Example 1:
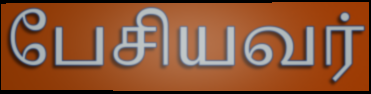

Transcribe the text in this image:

பேசியவர்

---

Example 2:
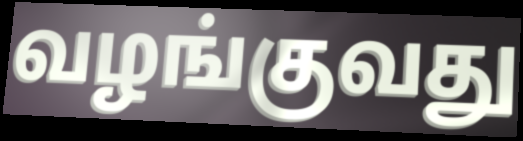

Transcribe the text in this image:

வழங்குவது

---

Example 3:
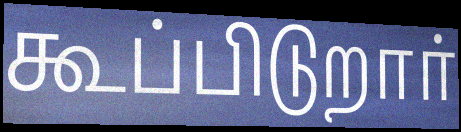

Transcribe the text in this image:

கூப்பிடுறார்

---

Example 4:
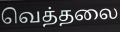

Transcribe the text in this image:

வெத்தலை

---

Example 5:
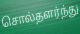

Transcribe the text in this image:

சொல்தளர்ந்து